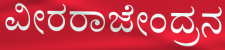
ವೀರರಾಜೇಂದ್ರನ